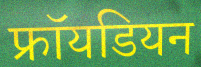
फ्रॉयडियन